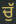
ਚੁੱ